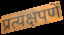
प्रत्यक्षपणें